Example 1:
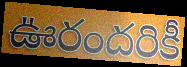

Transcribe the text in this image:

ఊరందరికీ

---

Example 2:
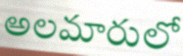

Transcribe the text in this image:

అలమారులో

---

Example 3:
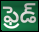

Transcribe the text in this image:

ఫ్రెడ్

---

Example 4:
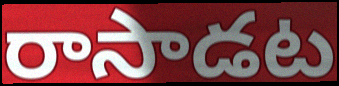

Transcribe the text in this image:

రాసాడట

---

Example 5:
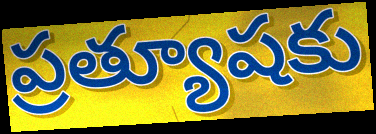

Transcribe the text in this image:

ప్రత్యూషకు